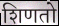
शिणतो